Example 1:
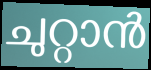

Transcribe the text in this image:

ചുറ്റാൻ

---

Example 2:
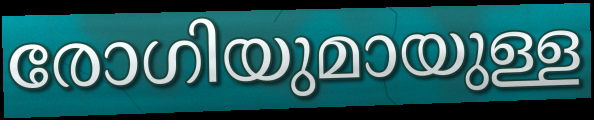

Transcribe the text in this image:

രോഗിയുമായുള്ള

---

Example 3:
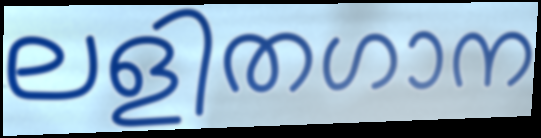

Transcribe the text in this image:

ലളിതഗാന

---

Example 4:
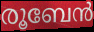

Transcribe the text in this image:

രൂബേൻ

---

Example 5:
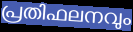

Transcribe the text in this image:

പ്രതിഫലനവും